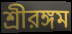
শ্রীরঙ্গম